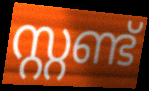
സ്റ്റണ്ട്